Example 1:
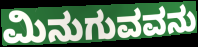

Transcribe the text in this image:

ಮಿನುಗುವವನು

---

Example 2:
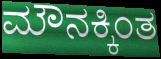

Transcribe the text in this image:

ಮೌನಕ್ಕಿಂತ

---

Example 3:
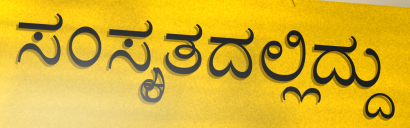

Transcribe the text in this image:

ಸಂಸ್ಕೃತದಲ್ಲಿದ್ದು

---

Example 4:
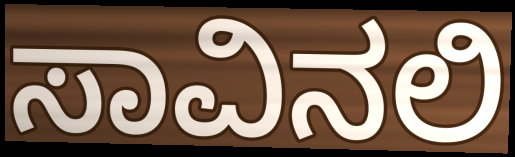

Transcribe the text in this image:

ಸಾವಿನಲಿ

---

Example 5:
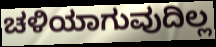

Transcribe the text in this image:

ಚಳಿಯಾಗುವುದಿಲ್ಲ